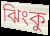
ঝিংকু